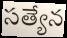
సత్యేన